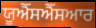
ਯੂਐੱਸਐੱਸਆਰ